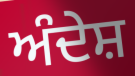
ਅੰਦੇਸ਼